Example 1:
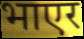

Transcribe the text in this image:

भाएर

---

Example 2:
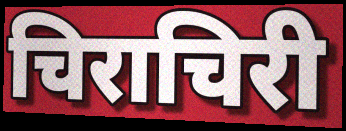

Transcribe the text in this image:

चिराचिरी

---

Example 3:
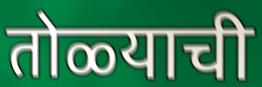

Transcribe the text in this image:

तोळ्याची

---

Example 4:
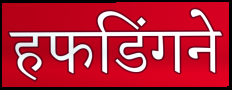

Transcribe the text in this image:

हफडिंगने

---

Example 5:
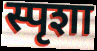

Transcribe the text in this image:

स्पृशा